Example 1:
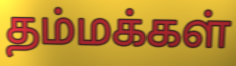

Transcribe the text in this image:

தம்மக்கள்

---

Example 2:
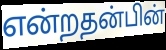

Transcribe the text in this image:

என்றதன்பின்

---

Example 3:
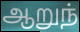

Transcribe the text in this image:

ஆறுந்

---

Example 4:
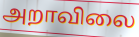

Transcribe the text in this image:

அறாவிலை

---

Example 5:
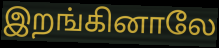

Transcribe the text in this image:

இறங்கினாலே